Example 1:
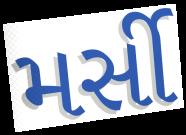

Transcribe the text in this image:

મર્સી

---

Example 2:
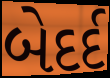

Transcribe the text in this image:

બેદર્દ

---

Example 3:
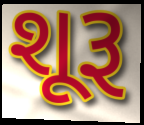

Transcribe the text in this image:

શૂરૂ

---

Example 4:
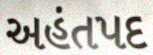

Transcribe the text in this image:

અહંતપદ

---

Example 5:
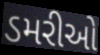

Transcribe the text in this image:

ડમરીઓ